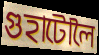
গুহাটোলৈ